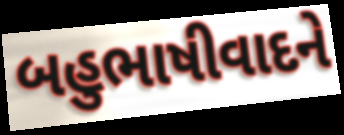
બહુભાષીવાદને